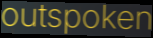
outspoken